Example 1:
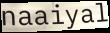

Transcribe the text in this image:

naaiyal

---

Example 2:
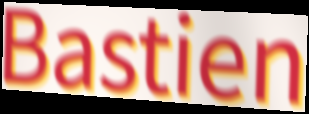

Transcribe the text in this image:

Bastien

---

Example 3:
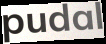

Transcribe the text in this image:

pudal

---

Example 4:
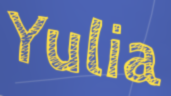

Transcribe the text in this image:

Yulia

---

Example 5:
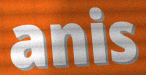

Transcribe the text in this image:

anis